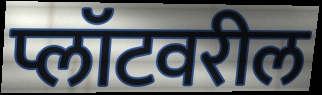
प्लॉटवरील